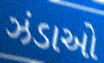
ઝંડાઓ